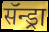
सॅन्ड्रा